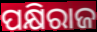
ପକ୍ଷିରାଜ